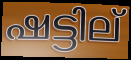
ഷട്ടില്